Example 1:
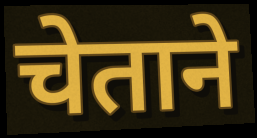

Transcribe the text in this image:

चेताने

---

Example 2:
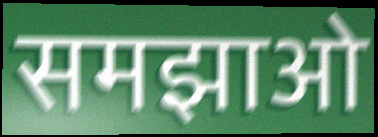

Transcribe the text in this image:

समझाओ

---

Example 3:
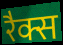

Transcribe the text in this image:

रैक्स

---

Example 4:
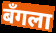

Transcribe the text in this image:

बँगला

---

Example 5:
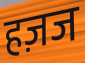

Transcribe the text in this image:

हज़ज